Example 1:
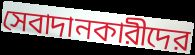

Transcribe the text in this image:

সেবাদানকারীদের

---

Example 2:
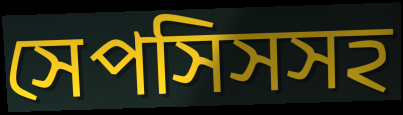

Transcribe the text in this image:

সেপসিসসহ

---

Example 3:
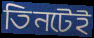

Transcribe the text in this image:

তিনটেই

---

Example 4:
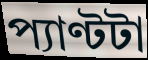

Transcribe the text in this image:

প্যাণ্টটা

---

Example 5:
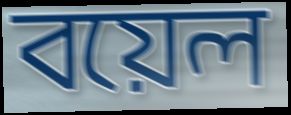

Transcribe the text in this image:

বয়েল